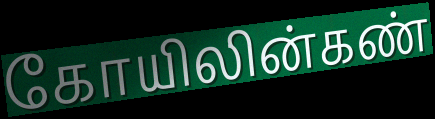
கோயிலின்கண்